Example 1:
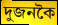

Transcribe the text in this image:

দুজনকৈ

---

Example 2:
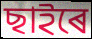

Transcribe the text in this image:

ছাইৰে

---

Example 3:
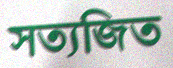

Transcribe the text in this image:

সত্যজিত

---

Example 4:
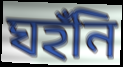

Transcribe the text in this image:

ঘহঁনি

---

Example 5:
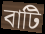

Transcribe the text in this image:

বাটি